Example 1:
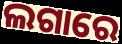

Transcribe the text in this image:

ଲଗାରେ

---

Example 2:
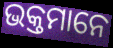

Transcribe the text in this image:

ଭକ୍ତମାନେ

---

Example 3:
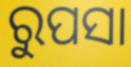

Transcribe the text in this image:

ରୁପସା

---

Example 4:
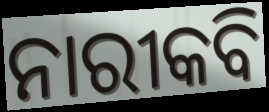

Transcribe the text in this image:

ନାରୀକବି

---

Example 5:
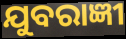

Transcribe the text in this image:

ଯୁବରାଜ୍ଞୀ